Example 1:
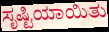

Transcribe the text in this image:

ಸೃಷ್ಟಿಯಾಯಿತು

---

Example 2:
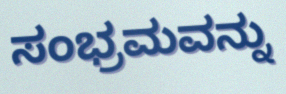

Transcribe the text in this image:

ಸಂಭ್ರಮವನ್ನು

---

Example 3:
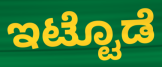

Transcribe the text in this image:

ಇಟ್ಟೊಡೆ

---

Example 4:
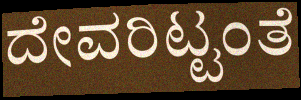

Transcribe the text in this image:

ದೇವರಿಟ್ಟಂತೆ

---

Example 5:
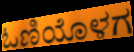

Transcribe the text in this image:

ಓಣಿಯೊಳಗ